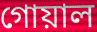
গোয়াল